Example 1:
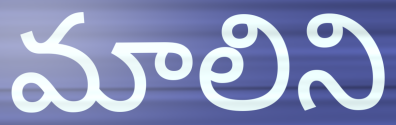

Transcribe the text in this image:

మాలిని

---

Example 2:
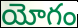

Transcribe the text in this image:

యోగం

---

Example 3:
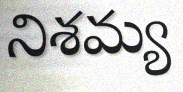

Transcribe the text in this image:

నిశమ్య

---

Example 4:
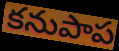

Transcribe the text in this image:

కనుపాప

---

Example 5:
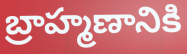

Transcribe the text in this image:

బ్రాహ్మణానికి